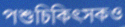
পশুচিকিৎসকও